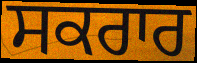
ਸਕਰਾਰ